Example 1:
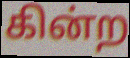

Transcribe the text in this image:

கின்ற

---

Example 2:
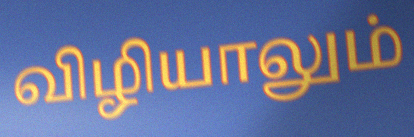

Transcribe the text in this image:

விழியாலும்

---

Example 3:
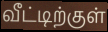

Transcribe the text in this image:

வீட்டிற்குள்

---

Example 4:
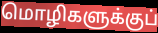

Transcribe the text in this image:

மொழிகளுக்குப்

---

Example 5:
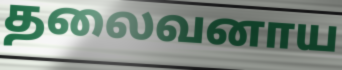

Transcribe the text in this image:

தலைவனாய